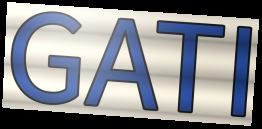
GATI